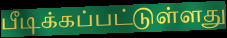
பீடிக்கப்பட்டுள்ளது